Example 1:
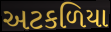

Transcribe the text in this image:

અટકળિયા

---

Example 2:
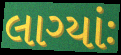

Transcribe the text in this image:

લાગ્યાંઃ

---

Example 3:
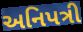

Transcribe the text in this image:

અનિપત્રી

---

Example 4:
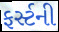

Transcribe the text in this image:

ફર્સ્ટની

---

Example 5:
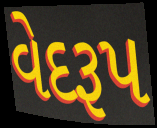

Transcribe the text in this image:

વેદરૂપ